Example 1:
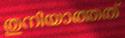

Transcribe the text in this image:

തുനിയാത്തത്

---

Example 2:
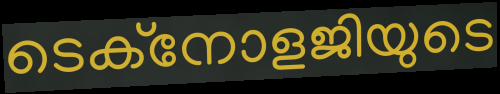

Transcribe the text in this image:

ടെക്നോളജിയുടെ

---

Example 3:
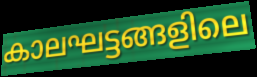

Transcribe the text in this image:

കാലഘട്ടങ്ങളിലെ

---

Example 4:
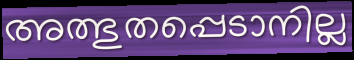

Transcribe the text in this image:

അത്ഭുതപ്പെടാനില്ല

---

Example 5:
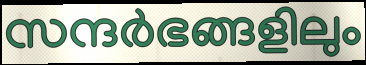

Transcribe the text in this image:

സന്ദർഭങ്ങളിലും